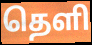
தெளி